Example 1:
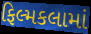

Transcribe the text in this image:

ફિલ્મકલામાં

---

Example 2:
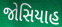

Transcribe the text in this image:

જોસિયાહ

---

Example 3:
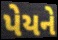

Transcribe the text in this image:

પેયને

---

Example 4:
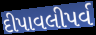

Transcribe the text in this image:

દીપાવલીપર્વ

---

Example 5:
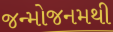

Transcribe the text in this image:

જન્મોજનમથી